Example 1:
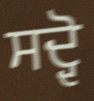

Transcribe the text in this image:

ਸਦ੍ਦੋ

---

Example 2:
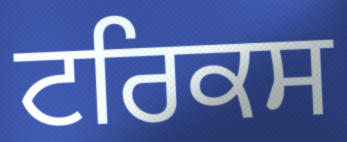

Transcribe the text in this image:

ਟਰਿਕਸ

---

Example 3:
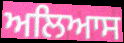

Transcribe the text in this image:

ਅਲਿਆਸ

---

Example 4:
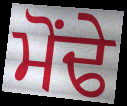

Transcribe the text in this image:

ਮੋਂਢੇ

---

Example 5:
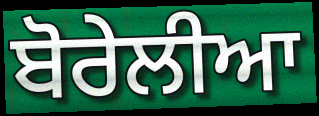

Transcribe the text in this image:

ਬੋਰੇਲੀਆ